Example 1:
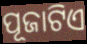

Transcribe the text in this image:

ପୂଜାଟିଏ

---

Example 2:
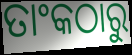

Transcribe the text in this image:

ତାଂକଠାରୁ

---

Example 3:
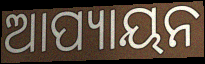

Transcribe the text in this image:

ଆପ୍ୟାୟନ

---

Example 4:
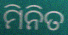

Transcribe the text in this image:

ମିନିତ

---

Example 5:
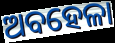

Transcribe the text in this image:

ଅବହେଳା